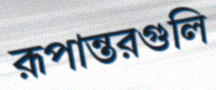
রূপান্তরগুলি